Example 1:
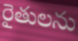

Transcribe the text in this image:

రైతులను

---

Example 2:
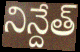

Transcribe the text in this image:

నిన్దేత్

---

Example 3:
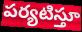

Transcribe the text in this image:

పర్యటిస్తూ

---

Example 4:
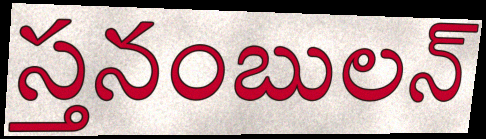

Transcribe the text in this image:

స్తనంబులన్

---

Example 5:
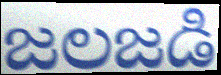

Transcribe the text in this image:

జలజడి